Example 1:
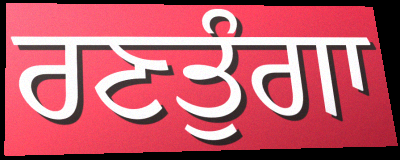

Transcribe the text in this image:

ਰਣਤੁੰਗਾ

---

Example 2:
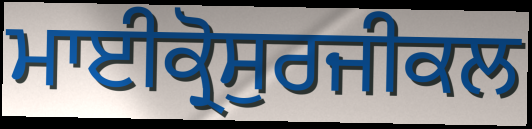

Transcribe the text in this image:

ਮਾਈਕ੍ਰੋਸੁਰਜੀਕਲ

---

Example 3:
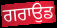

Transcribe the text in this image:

ਗਰਾਉਡ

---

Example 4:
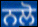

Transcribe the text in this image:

ਨਲੋ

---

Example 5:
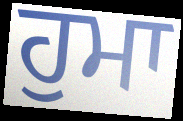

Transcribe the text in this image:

ਹੁਮਾ